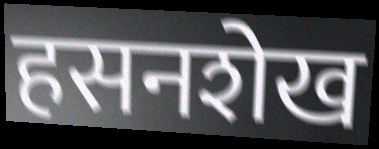
हसनशेख